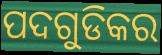
ପଦଗୁଡିକର